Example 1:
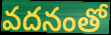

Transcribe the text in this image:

వదనంతో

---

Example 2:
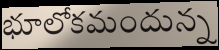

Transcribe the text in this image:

భూలోకమందున్న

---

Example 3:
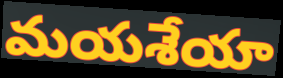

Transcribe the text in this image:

మయశేయా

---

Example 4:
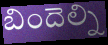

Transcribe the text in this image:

బిందెల్ని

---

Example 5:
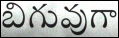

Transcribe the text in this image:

బిగువుగా